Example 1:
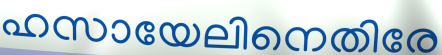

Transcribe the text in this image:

ഹസായേലിനെതിരേ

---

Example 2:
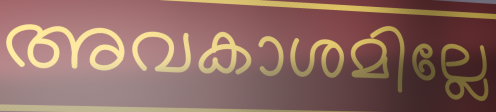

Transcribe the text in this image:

അവകാശമില്ലേ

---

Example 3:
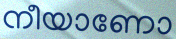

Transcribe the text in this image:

നീയാണോ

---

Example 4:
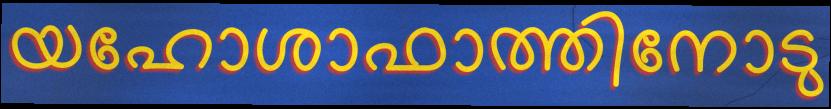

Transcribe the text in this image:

യഹോശാഫാത്തിനോടു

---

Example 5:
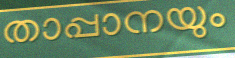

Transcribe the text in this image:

താപ്പാനയും